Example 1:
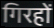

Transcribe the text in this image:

गिरहों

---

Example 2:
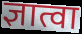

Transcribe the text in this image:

ज्ञात्वा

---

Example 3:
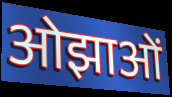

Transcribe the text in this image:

ओझाओं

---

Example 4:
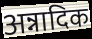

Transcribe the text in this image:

अन्नादिक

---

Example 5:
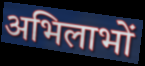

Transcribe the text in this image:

अभिलाभों